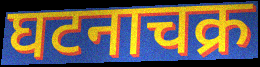
घटनाचक्र